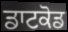
ਡਾਟਕੋਡ